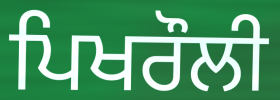
ਪਿਖਰੌਲੀ